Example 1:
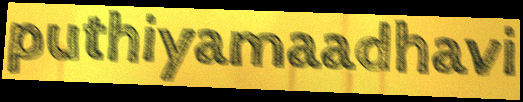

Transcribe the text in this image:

puthiyamaadhavi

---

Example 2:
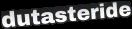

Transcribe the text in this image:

dutasteride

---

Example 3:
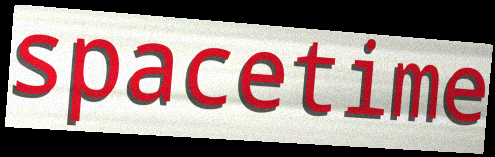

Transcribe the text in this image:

spacetime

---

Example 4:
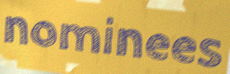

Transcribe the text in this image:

nominees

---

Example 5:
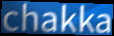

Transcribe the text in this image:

chakka